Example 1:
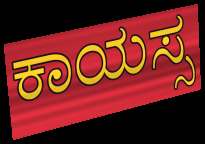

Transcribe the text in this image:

ಕಾಯಸ್ಸ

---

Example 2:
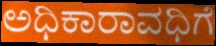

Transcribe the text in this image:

ಅಧಿಕಾರಾವಧಿಗೆ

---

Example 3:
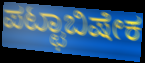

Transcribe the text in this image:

ಪಟ್ಟಾಬಿಷೇಕ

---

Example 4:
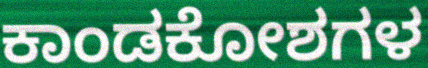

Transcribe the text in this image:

ಕಾಂಡಕೋಶಗಳ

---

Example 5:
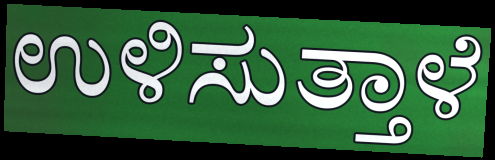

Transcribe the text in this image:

ಉಳಿಸುತ್ತಾಳೆ